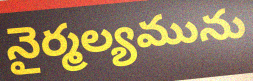
నైర్మల్యమును